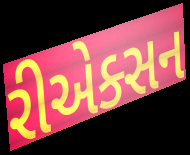
રીએક્સન